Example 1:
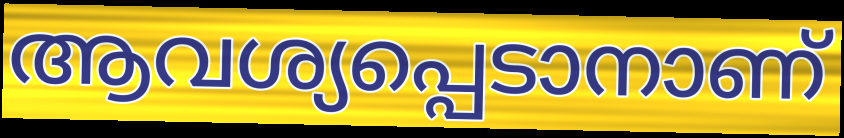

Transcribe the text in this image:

ആവശ്യപ്പെടാനാണ്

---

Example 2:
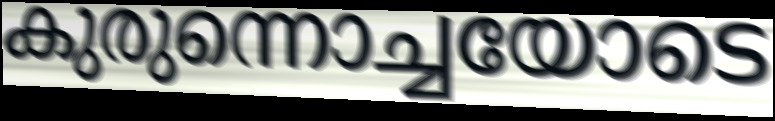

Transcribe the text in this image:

കുരുന്നൊച്ചയോടെ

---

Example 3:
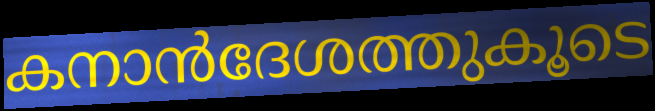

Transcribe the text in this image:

കനാൻദേശത്തുകൂടെ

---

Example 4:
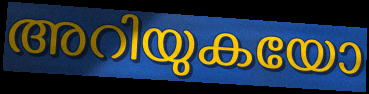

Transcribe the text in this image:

അറിയുകയോ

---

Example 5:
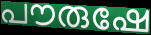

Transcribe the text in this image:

പൗരുഷേ